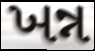
ખન્ન